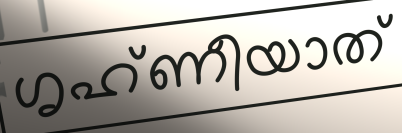
ഗൃഹ്ണീയാത്